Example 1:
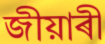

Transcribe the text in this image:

জীয়াৰী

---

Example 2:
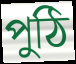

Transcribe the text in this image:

পুঠি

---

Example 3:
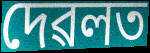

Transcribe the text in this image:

দেৱলত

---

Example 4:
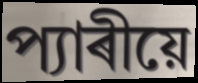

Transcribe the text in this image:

প্যাৰীয়ে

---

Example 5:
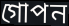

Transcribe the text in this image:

গোপন